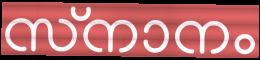
സ്‌നാനം